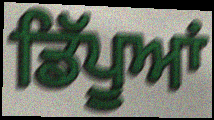
ਡਿੱਪੂਆਂ